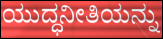
ಯುದ್ಧನೀತಿಯನ್ನು